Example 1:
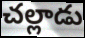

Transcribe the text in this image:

చల్లాడు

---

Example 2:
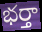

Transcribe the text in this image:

భర్తా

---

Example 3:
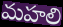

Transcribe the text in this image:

మహలి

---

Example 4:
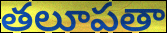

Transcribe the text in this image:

తలూపతా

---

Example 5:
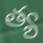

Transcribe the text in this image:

త్య